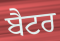
ਬੈਟਰ